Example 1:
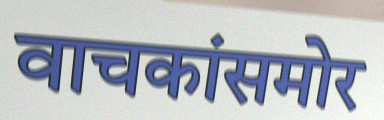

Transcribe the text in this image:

वाचकांसमोर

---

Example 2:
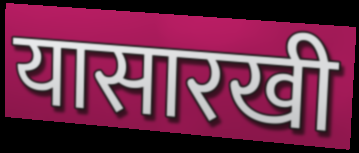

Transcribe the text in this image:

यासारखी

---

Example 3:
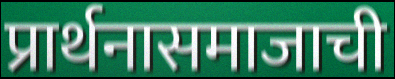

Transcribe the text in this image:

प्रार्थनासमाजाची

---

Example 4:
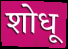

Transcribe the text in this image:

शोधू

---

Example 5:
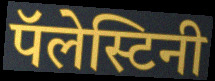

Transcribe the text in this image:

पॅलेस्टिनी